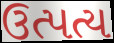
ઉત્પત્ય